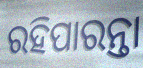
ରହିପାରନ୍ତା